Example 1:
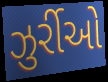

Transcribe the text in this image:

ઝુર્રીઓ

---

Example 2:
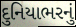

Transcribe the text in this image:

દુનિયાભરનું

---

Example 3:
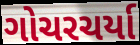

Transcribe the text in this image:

ગોચરચર્યા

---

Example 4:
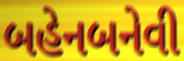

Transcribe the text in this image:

બહેનબનેવી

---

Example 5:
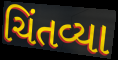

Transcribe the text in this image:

ચિંતવ્યા